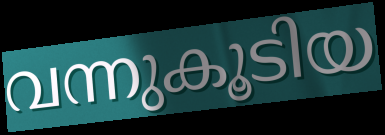
വന്നുകൂടിയ